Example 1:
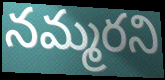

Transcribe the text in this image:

నమ్మరని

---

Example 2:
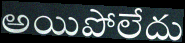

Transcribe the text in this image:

అయిపోలేదు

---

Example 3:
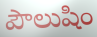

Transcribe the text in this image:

పౌలుషిం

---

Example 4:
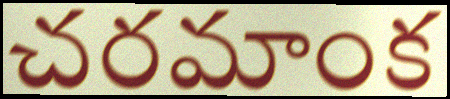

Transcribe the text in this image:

చరమాంక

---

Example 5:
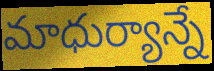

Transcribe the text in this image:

మాధుర్యాన్నే